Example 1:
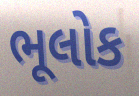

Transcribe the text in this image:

ભૂલોક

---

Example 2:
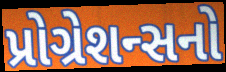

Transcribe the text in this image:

પ્રોગ્રેશન્સનો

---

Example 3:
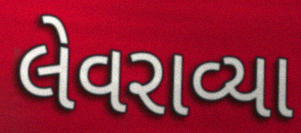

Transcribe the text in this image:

લેવરાવ્યા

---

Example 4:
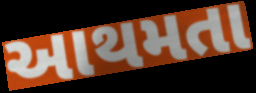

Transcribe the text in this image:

આથમતા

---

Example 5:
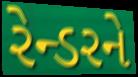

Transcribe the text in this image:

રેન્ડરને